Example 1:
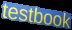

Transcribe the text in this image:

testbook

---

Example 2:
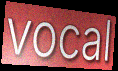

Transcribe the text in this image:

vocal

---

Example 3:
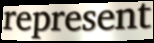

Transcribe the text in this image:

represent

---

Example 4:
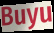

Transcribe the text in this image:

Buyu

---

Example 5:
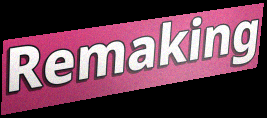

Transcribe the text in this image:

Remaking